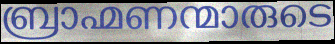
ബ്രാഹ്മണന്മാരുടെ